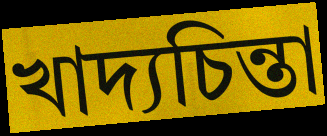
খাদ্যচিন্তা